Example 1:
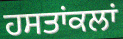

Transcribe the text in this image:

ਹਸਤਾਂਕਲਾਂ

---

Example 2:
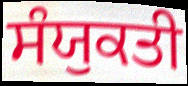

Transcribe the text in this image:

ਸੰਯੁਕਤੀ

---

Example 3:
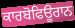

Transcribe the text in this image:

ਕਾਰਬੋਫਿਊਰਾਨ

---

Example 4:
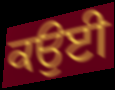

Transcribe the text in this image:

ਕਉਈ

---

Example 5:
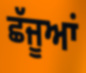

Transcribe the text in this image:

ਛੱਜੂਆਂ